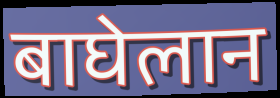
बाघेलान